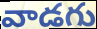
వాడగు